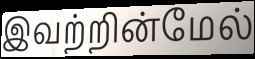
இவற்றின்மேல்